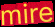
mire